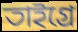
তাইগ্রে